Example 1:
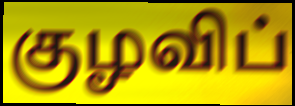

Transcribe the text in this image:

குழவிப்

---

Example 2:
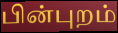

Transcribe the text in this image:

பின்புறம்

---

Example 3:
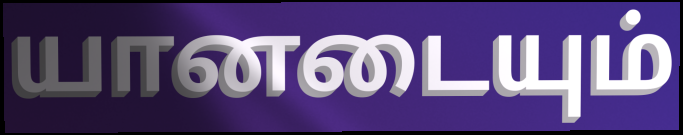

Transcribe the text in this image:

யானடையும்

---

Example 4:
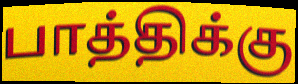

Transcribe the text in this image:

பாத்திக்கு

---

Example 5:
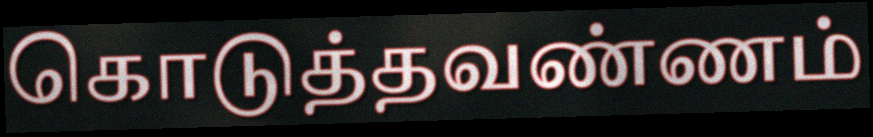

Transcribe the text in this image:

கொடுத்தவண்ணம்